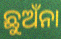
ଛୁଅଁନା